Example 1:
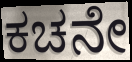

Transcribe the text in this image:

ಕಚನೇ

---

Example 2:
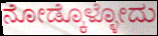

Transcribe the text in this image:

ನೋಡ್ಕೊಳ್ಳೋದು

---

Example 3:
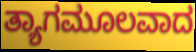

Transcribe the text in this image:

ತ್ಯಾಗಮೂಲವಾದ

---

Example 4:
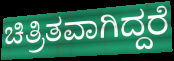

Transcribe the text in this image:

ಚಿತ್ರಿತವಾಗಿದ್ದರೆ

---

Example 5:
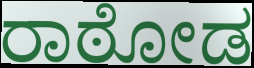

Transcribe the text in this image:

ರಾಠೋಡ